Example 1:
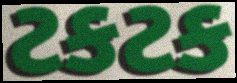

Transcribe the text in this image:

ટકટક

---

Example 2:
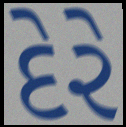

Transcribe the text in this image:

દેરે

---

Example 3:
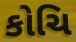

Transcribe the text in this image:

કોચિ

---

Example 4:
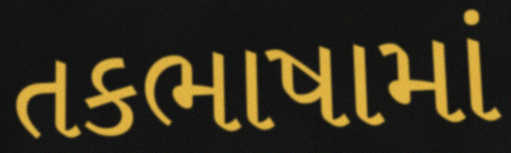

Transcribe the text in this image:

તકભાષામાં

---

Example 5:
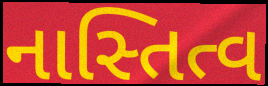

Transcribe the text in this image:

નાસ્તિત્વ